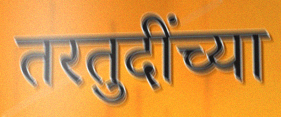
तरतुदींच्या